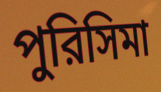
পুরিসিমা